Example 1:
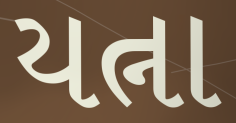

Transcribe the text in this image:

યત્ના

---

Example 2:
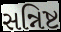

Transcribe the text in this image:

સન્નિષ્ટ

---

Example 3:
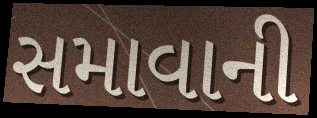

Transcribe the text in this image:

સમાવાની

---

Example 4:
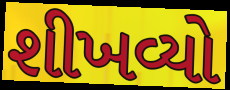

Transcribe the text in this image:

શીખવ્યો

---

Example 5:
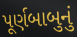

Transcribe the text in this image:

પૂર્ણબાબુનું